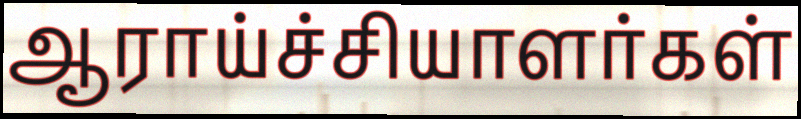
ஆராய்ச்சியாளர்கள்